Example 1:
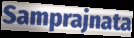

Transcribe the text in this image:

Samprajnata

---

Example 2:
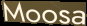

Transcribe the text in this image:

Moosa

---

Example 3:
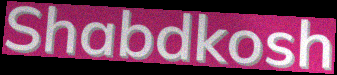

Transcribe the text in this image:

Shabdkosh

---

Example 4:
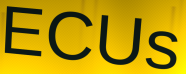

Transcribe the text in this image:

ECUs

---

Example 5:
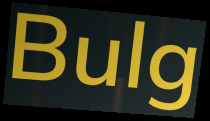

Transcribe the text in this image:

Bulg